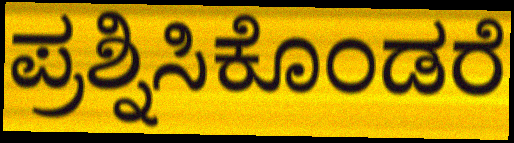
ಪ್ರಶ್ನಿಸಿಕೊಂಡರೆ